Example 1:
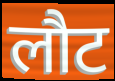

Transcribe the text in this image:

लौट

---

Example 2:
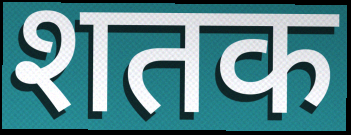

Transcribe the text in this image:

शतक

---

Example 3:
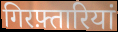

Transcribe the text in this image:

गिरफ़्तारियां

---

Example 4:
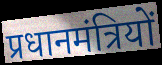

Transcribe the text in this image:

प्रधानमंत्रियों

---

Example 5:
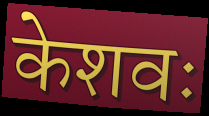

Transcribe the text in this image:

केशवः